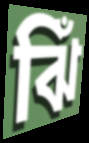
ঝিঁ